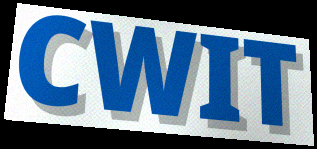
CWIT